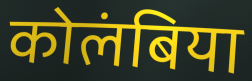
कोलंबिया